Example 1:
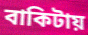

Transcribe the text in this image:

বাকিটায়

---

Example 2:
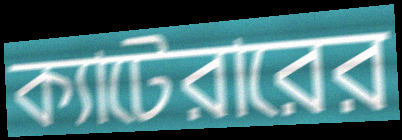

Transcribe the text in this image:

ক্যাটেরারের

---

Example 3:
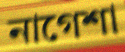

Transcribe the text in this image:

নাগেশা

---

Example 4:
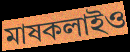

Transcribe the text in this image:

মাষকলাইও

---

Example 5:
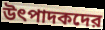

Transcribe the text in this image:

উৎপাদকদের